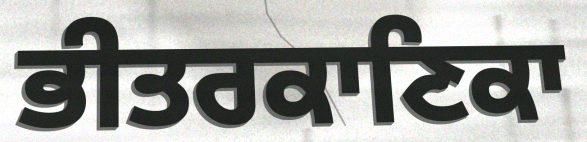
ਭੀਤਰਕਾਣਿਕਾ